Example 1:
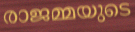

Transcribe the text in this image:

രാജമ്മയുടെ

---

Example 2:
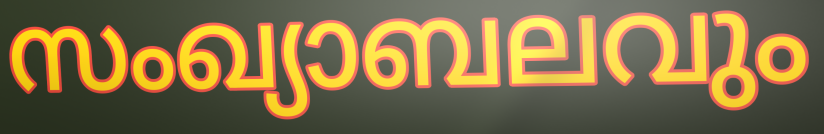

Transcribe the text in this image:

സംഖ്യാബലവും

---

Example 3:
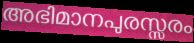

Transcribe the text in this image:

അഭിമാനപുരസ്സരം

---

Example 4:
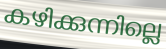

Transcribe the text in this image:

കഴിക്കുന്നില്ലെ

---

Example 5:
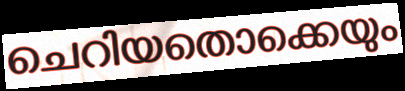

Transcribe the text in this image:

ചെറിയതൊക്കെയും